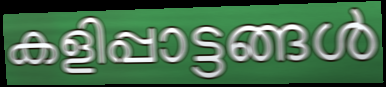
കളിപ്പാട്ടങ്ങൾ